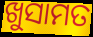
ଖୁସାମତ